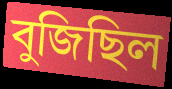
বুজিছিল